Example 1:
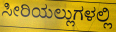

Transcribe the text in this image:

ಸೀರಿಯಲ್ಲುಗಳಲ್ಲಿ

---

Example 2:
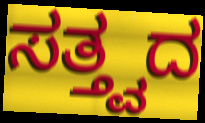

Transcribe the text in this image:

ಸತ್ತ್ವದ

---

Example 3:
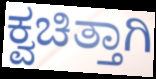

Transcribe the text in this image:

ಕ್ವಚಿತ್ತಾಗಿ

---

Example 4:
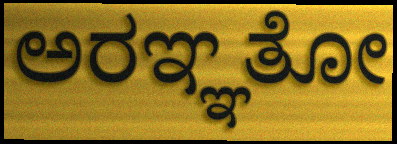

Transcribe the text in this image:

ಅರಞ್ಞತೋ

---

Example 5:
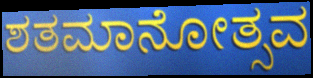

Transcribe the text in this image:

ಶತಮಾನೋತ್ಸವ